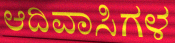
ಆದಿವಾಸಿಗಳ